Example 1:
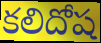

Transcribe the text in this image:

కలిదోష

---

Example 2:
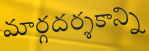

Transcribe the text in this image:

మార్గదర్శకాన్ని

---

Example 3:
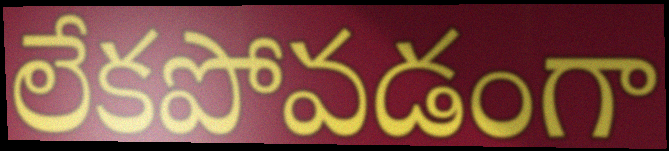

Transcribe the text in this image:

లేకపోవడంగా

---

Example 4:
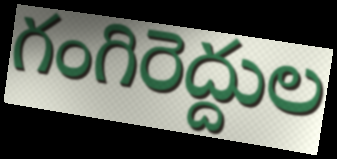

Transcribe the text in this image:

గంగిరెద్దుల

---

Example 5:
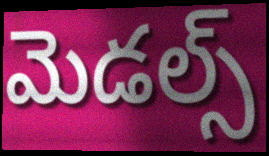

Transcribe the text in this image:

మెడల్స్